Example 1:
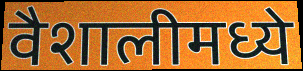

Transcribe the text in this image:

वैशालीमध्ये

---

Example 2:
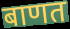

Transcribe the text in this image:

बाणत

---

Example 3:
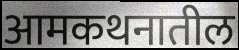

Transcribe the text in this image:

आमकथनातील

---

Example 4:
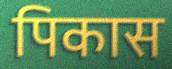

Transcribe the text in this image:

पिकास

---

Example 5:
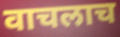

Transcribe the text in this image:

वाचलाच